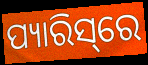
ପ୍ୟାରିସ୍‌ରେ